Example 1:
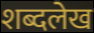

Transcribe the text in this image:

शब्दलेख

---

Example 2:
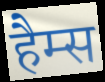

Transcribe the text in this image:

हैम्स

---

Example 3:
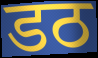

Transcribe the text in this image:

डठ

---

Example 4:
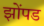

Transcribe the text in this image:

झोंपड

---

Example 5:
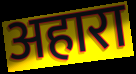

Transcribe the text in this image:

अहारा